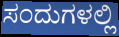
ಸಂದುಗಳಲ್ಲಿ